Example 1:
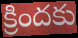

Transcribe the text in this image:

క్రిందకు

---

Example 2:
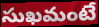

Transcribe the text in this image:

సుఖమంటే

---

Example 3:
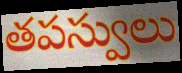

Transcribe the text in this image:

తపస్వులు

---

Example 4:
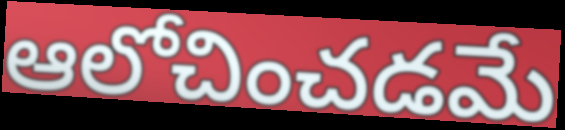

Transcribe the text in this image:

ఆలోచించడమే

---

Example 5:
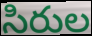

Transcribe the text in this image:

సిరుల